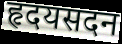
हृदयसदन